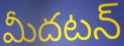
మీదటన్